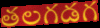
తలగడగ